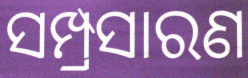
ସମ୍ପ୍ରସାରଣ